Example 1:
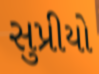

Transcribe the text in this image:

સુપ્રીયો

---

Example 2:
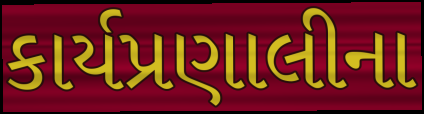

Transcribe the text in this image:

કાર્યપ્રણાલીના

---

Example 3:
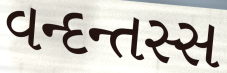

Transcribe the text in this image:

વન્દન્તસ્સ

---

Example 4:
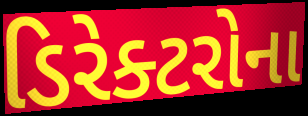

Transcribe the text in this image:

ડિરેક્ટરોના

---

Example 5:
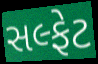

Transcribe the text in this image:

સલ્ફેટ